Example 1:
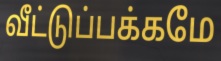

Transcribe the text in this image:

வீட்டுப்பக்கமே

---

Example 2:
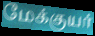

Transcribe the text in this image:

மேக்குயர்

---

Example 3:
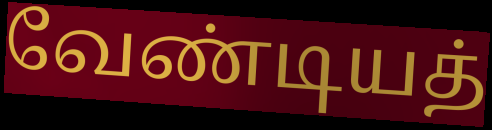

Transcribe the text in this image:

வேண்டியத்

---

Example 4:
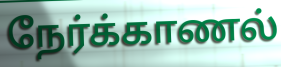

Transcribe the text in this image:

நேர்க்காணல்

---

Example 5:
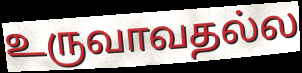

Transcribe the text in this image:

உருவாவதல்ல